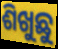
ଶିଖୁଛୁ